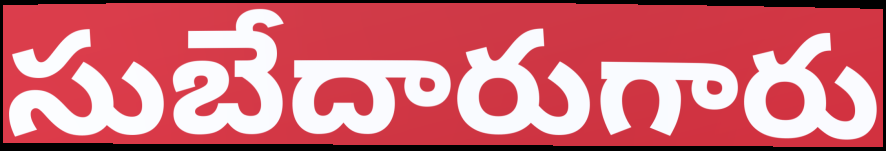
సుబేదారుగారు